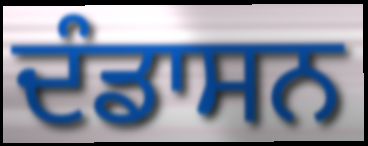
ਦੰਡਾਸਨ